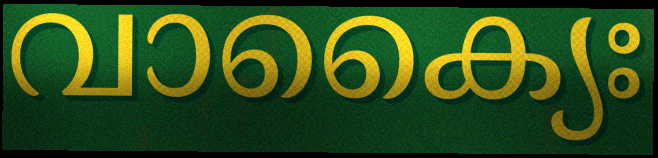
വാക്യൈഃ